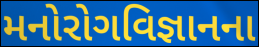
મનોરોગવિજ્ઞાનના